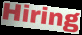
Hiring